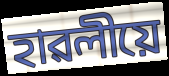
হাৱলীয়ে